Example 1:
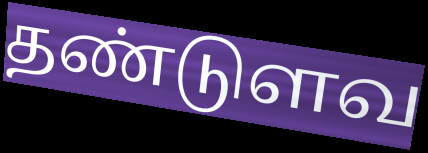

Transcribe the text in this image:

தண்டுளவ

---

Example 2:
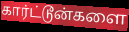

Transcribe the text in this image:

கார்ட்டூன்களை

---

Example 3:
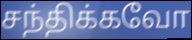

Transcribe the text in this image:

சந்திக்கவோ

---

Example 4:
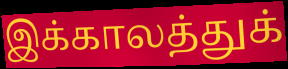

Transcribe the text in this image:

இக்காலத்துக்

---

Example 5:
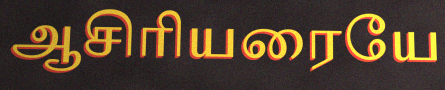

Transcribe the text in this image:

ஆசிரியரையே